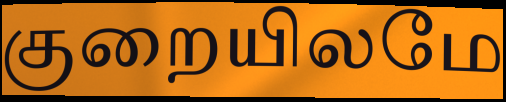
குறையிலமே